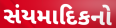
સંયમાદિકનો